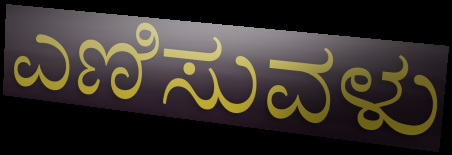
ಎಣಿಸುವಳು